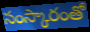
సంస్కారంతో